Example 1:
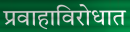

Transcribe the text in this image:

प्रवाहाविरोधात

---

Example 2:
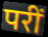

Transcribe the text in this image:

परीं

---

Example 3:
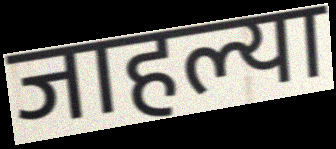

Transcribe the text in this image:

जाहल्या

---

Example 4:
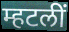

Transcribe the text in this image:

म्हटलीं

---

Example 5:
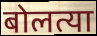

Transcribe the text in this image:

बोलत्या